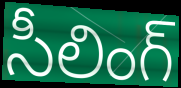
సీలింగ్